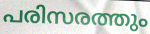
പരിസരത്തും